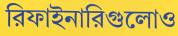
রিফাইনারিগুলোও